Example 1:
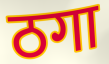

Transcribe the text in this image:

ठगा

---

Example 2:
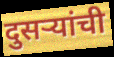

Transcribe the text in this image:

दुसऱ्यांची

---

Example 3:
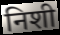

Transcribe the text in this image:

निशी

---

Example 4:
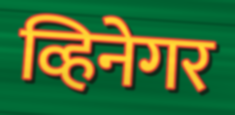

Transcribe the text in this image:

व्हिनेगर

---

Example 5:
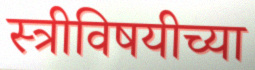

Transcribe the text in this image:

स्त्रीविषयीच्या